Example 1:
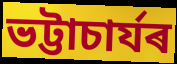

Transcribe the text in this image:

ভট্টাচাৰ্যৰ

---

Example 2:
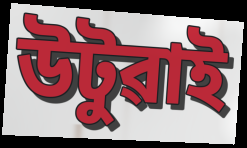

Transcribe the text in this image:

উটুৱাই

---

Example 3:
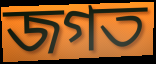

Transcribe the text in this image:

জগত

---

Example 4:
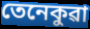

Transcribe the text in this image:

তেনেকুৱা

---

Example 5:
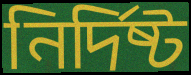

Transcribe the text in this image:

নিৰ্দিষ্ট